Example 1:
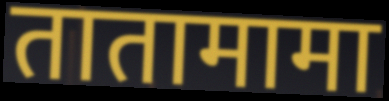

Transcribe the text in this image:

तातामामा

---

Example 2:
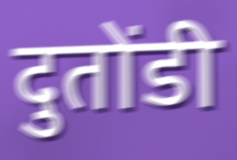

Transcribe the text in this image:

दुतोंडी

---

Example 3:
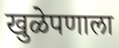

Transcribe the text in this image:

खुळेपणाला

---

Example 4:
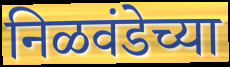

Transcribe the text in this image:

निळवंडेच्या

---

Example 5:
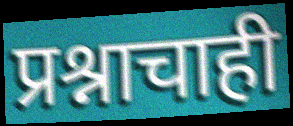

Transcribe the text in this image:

प्रश्नाचाही